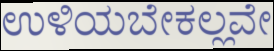
ಉಳಿಯಬೇಕಲ್ಲವೇ